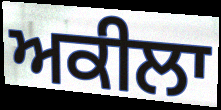
ਅਕੀਲਾ